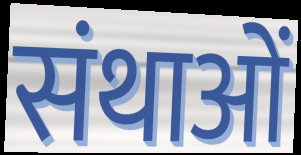
संथाओं